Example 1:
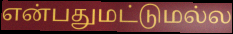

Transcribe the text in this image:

என்பதுமட்டுமல்ல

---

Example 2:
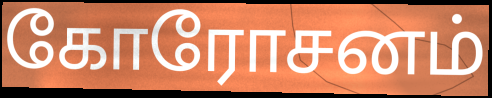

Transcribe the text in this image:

கோரோசனம்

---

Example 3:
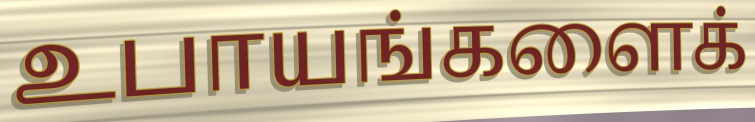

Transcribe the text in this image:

உபாயங்களைக்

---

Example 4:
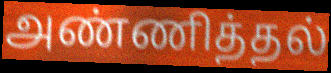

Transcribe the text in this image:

அண்ணித்தல்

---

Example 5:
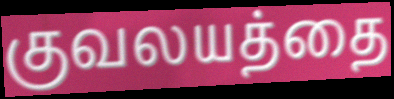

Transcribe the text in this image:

குவலயத்தை